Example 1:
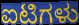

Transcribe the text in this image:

ಐಟಿಗಳು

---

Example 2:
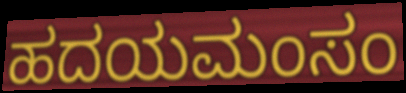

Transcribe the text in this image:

ಹದಯಮಂಸಂ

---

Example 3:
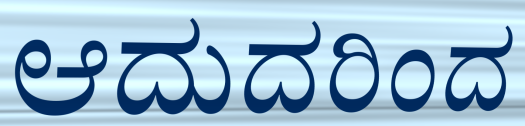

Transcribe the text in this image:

ಆದುದರಿಂದ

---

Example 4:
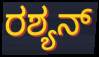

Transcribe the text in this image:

ರಶ್ಯನ್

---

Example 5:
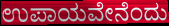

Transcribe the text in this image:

ಉಪಾಯವೇನೆಂದು